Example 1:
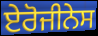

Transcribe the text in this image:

ਏਰੋਜੀਨੇਸ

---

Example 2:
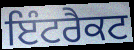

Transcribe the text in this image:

ਇੰਟਰੈਕਟ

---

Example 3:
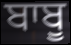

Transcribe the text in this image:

ਬਾਬੂ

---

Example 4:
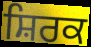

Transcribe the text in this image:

ਸ਼ਿਰਕ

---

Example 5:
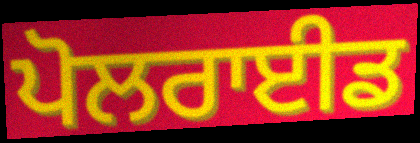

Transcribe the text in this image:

ਪੋਲਰਾਈਡ